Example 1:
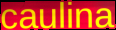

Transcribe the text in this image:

caulina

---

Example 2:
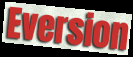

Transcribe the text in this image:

Eversion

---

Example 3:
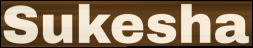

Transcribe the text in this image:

Sukesha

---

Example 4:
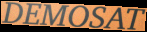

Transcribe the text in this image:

DEMOSAT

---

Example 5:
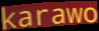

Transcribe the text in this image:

karawo